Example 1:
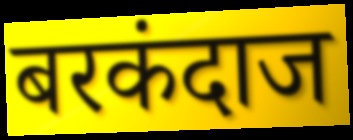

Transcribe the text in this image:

बरकंदाज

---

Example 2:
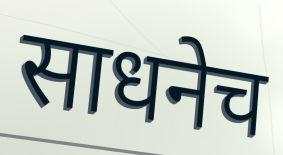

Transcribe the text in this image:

साधनेच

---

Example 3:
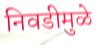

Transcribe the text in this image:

निवडीमुळे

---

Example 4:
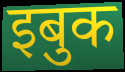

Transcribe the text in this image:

इबुक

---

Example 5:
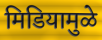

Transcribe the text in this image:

मिडियामुळे